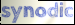
synodic